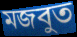
মজবুত